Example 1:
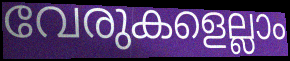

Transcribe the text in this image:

വേരുകളെല്ലാം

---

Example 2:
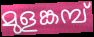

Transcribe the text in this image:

മുളങ്കമ്പ്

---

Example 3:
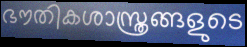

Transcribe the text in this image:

ഭൗതികശാസ്ത്രങ്ങളുടെ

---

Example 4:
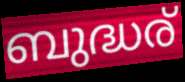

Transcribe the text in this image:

ബുദ്ധര്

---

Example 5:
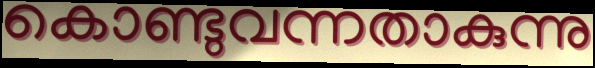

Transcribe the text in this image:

കൊണ്ടുവന്നതാകുന്നു